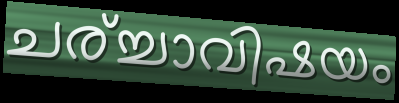
ചര്ച്ചാവിഷയം